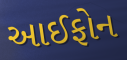
આઈફોન